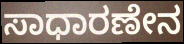
ಸಾಧಾರಣೇನ